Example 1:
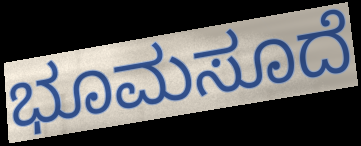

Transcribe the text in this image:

ಭೂಮಸೂದೆ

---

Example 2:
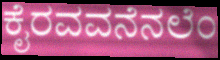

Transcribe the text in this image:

ಕೈರವವನೆನಲೆಂ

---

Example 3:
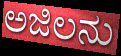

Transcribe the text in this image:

ಅಜಿಲನು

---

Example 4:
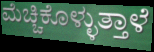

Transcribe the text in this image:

ಮೆಚ್ಚಿಕೊಳ್ಳುತ್ತಾಳೆ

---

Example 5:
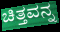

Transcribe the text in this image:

ಚಿತ್ತವನ್ನ